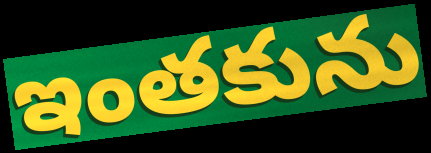
ఇంతకును